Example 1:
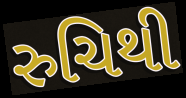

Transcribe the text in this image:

રુચિથી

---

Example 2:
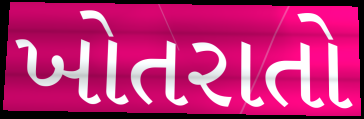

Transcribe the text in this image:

ખોતરાતો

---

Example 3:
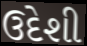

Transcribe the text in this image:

ઉદેશી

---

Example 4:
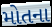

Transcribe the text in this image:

મોતના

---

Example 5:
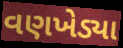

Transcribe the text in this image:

વણખેડ્યા